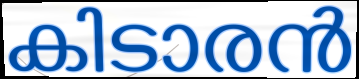
കിടാരൻ